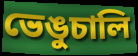
ভেঙুচালি